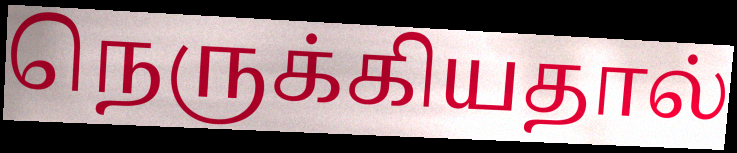
நெருக்கியதால்